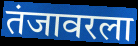
तंजावरला